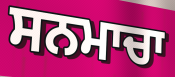
ਸਨਮਾਚਾ